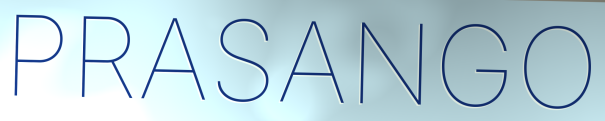
PRASANGO